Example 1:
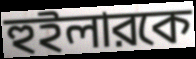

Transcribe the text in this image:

হুইলারকে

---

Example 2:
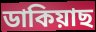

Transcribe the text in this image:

ডাকিয়াছ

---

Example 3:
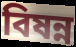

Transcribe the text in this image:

বিষন্ন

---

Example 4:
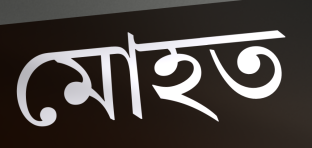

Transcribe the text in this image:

মোহত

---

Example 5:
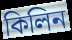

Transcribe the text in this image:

কিলিন